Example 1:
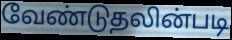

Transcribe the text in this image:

வேண்டுதலின்படி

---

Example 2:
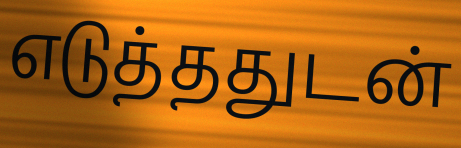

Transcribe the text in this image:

எடுத்ததுடன்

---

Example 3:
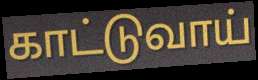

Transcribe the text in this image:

காட்டுவாய்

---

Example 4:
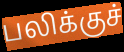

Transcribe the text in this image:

பலிக்குச்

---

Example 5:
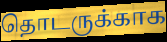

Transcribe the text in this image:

தொடருக்காக